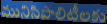
మునిసిపాలిటీలకు